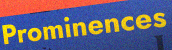
Prominences